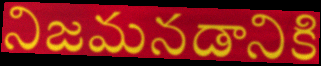
నిజమనడానికి